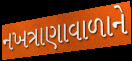
નખત્રાણાવાળાને